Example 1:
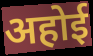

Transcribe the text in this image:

अहोई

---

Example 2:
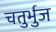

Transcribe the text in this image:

चतुर्भुज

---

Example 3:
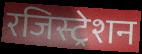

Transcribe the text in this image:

रजिस्ट्रेशन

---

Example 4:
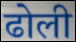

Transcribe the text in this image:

ढोली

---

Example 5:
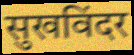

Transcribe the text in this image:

सुखविंदर